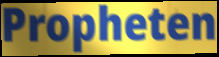
Propheten